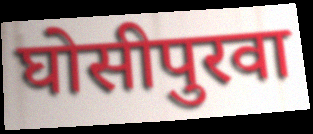
घोसीपुरवा